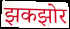
झकझोर